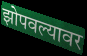
झोपवल्यावर